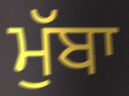
ਮੁੱਬਾ